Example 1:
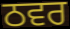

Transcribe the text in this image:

ਠਵਰ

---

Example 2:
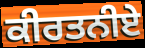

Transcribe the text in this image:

ਕੀਰਤਨੀਏ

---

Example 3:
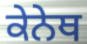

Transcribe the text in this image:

ਕੇਨੇਥ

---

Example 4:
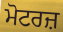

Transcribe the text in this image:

ਮੋਟਰਜ਼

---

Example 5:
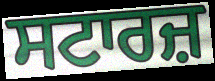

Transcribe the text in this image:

ਸਟਾਰਜ਼